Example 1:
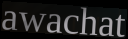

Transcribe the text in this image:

awachat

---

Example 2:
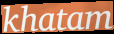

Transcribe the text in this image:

khatam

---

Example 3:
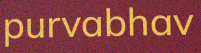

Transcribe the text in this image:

purvabhav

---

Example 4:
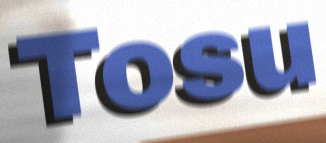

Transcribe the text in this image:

Tosu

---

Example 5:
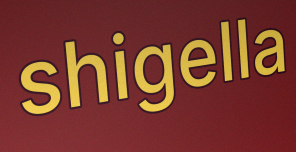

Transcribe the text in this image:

shigella